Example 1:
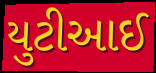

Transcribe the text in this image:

યુટીઆઈ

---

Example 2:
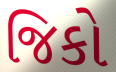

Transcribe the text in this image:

જિકો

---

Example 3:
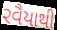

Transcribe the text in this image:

રવૈયાથી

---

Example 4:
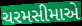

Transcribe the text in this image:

ચરમસીમાએ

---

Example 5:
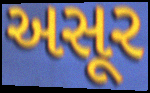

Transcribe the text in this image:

અસૂર